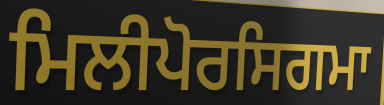
ਮਿਲੀਪੋਰਸਿਗਮਾ